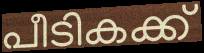
പീടികക്ക്